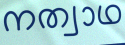
നത്വാഥ